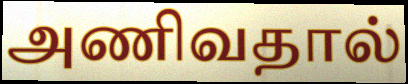
அணிவதால்